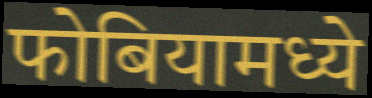
फोबियामध्ये